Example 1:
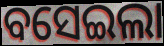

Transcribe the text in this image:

ବସେଇଲା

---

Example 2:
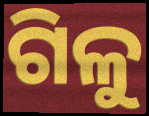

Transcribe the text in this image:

ଗିଳୁ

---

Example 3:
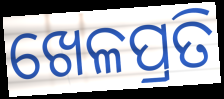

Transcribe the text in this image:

ଖେଳପ୍ରତି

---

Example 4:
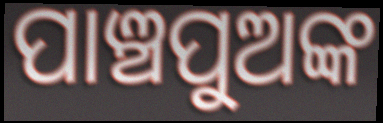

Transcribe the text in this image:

ପାଞ୍ଚପୁଅଙ୍କ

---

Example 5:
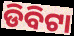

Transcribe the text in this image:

ଡିବିଟା